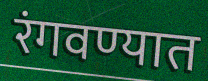
रंगवण्यात